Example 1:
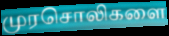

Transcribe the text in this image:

முரசொலிகளை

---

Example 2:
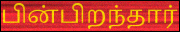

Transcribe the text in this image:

பின்பிறந்தார்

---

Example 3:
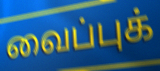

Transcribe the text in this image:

வைப்புக்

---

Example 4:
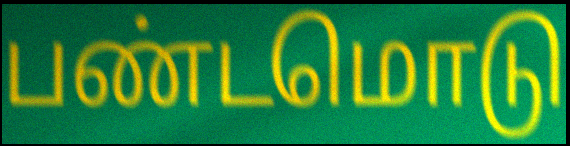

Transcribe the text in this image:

பண்டமொடு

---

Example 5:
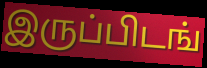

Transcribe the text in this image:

இருப்பிடங்